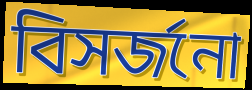
বিসৰ্জনো